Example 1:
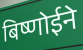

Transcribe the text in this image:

बिष्णोईने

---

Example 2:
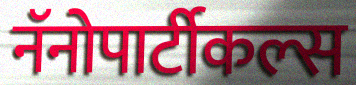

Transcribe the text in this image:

नॅनोपार्टीकल्स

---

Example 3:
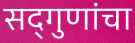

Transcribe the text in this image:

सद्‍गुणांचा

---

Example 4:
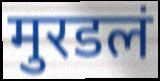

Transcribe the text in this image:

मुरडलं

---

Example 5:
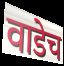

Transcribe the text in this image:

वाडेच